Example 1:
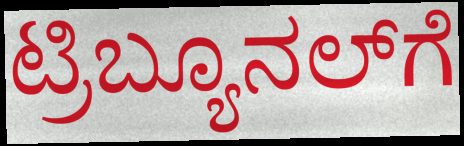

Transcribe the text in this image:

ಟ್ರಿಬ್ಯೂನಲ್‌ಗೆ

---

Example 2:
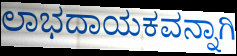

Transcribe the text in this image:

ಲಾಭದಾಯಕವನ್ನಾಗಿ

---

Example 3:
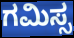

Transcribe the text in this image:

ಗಮಿಸ್ಸ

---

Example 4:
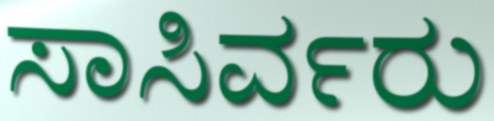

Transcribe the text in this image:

ಸಾಸಿರ್ವರು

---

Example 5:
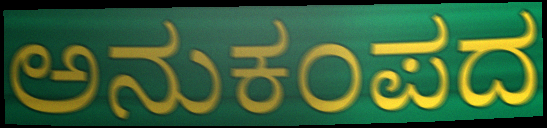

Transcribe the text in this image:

ಅನುಕಂಪದ